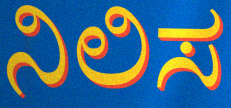
ನಿಲಿಸ